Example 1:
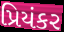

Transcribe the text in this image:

પ્રિયંકર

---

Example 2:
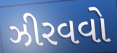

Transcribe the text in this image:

ઝીરવવો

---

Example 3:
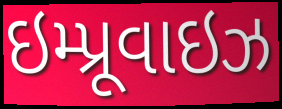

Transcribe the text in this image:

ઇમ્પ્રૂવાઇઝ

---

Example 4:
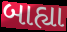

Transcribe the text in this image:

બાહ્યા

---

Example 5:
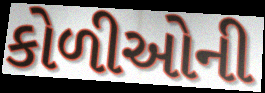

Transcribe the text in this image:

કોળીઓની